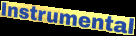
Instrumental